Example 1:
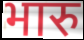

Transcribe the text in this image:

भारु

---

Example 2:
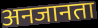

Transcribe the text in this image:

अनजानता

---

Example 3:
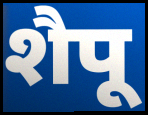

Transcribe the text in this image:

शैपू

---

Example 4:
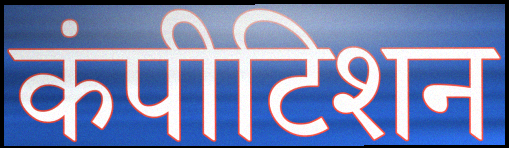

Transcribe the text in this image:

कंपीटिशन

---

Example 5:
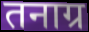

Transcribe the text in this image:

तनाग्र